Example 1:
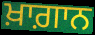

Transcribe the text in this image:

ਖ਼ਾਗ਼ਾਨ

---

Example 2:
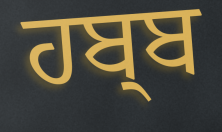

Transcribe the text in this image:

ਹਬ੍ਬ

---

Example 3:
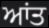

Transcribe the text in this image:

ਆਂਤ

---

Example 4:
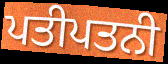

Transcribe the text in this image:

ਪਤੀਪਤਨੀ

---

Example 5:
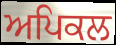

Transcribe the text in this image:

ਅਪਿਕਲ